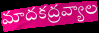
మాదకద్రవ్యాల